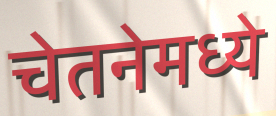
चेतनेमध्ये